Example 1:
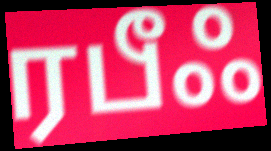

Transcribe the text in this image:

ரபீஃ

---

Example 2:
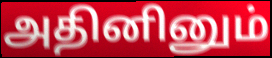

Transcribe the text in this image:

அதினினும்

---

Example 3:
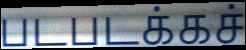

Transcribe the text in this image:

படபடக்கச்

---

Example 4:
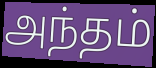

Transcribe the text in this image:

அந்தம்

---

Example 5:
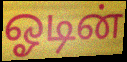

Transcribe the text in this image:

ஓடின்